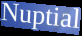
Nuptial